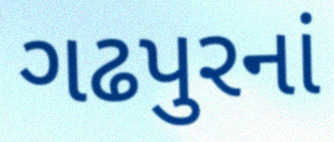
ગઢપુરનાં